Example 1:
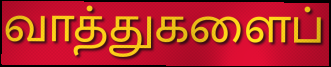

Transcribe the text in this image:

வாத்துகளைப்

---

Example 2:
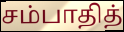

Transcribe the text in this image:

சம்பாதித்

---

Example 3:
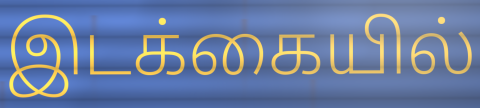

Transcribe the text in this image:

இடக்கையில்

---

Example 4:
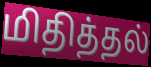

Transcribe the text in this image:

மிதித்தல்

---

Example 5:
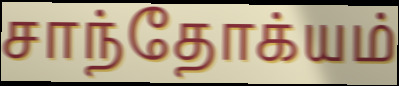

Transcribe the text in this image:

சாந்தோக்யம்